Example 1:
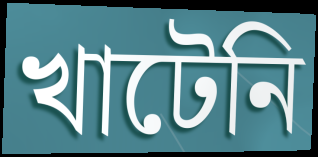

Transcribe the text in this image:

খাটেনি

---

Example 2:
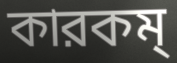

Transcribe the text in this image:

কারকম্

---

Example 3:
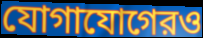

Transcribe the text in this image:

যোগাযোগেরও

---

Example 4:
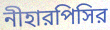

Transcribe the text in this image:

নীহারপিসির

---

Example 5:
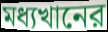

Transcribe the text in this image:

মধ্যখানের